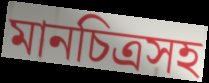
মানচিত্রসহ